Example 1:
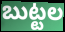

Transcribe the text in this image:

బుట్టల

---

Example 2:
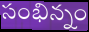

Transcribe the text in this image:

సంభిన్నం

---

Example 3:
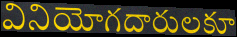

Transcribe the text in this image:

వినియోగదారులకూ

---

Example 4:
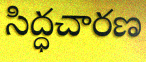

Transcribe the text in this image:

సిద్ధచారణ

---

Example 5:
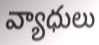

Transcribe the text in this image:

వ్యాధులు